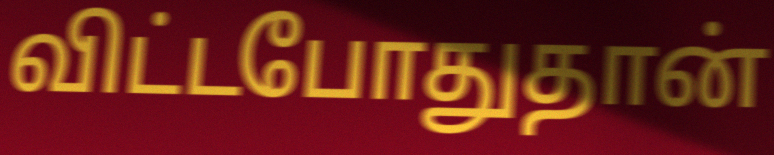
விட்டபோதுதான்